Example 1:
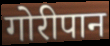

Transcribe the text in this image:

गोरीपान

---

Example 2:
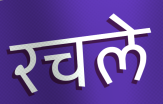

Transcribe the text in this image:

रचले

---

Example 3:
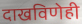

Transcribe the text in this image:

दाखविणेही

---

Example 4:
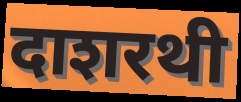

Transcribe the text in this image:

दाशरथी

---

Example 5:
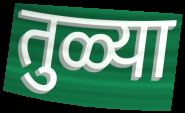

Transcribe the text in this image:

तुळ्या